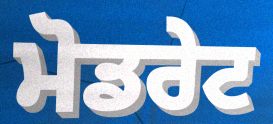
ਮੋਡਰੇਟ